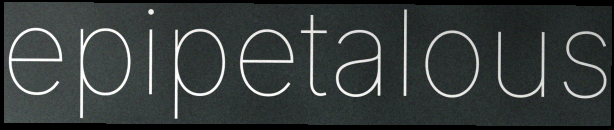
epipetalous